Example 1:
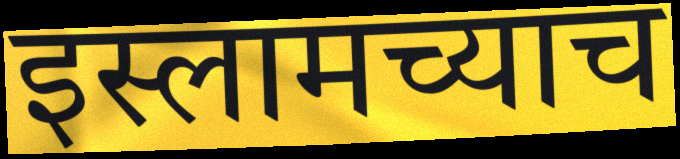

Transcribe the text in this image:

इस्लामच्याच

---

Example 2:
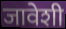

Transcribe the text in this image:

जावेशी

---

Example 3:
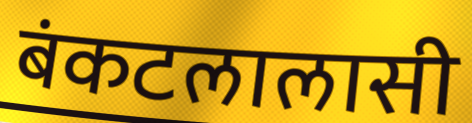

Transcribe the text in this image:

बंकटलालासी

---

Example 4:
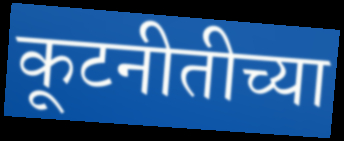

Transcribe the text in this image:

कूटनीतीच्या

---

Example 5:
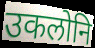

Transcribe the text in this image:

उकलोनि